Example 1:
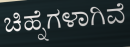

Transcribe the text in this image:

ಚಿಹ್ನೆಗಳಾಗಿವೆ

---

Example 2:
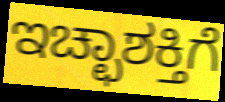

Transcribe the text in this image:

ಇಚ್ಛಾಶಕ್ತಿಗೆ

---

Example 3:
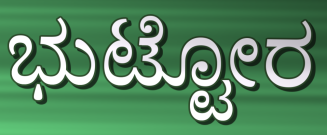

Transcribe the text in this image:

ಭುಟ್ಟೋರ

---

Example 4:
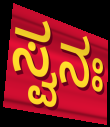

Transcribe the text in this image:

ಸ್ವನಃ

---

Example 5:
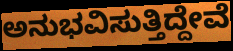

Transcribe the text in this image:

ಅನುಭವಿಸುತ್ತಿದ್ದೇವೆ